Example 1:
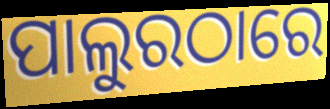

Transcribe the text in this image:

ପାଲୁରଠାରେ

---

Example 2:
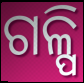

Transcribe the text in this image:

ଗଳ୍ପି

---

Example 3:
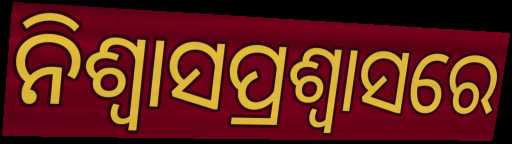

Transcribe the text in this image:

ନିଶ୍ୱାସପ୍ରଶ୍ୱାସରେ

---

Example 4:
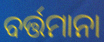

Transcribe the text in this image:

ବର୍ତ୍ତମାନା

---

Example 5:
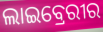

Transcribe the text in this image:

ଲାଇବ୍ରେରୀର